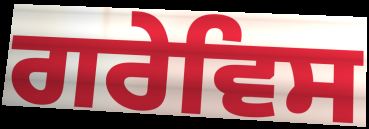
ਗਰੇਵਿਸ